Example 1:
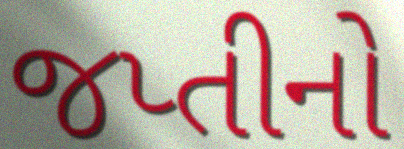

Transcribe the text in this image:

જપ્તીનો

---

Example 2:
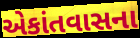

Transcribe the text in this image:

એકાંતવાસના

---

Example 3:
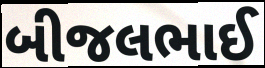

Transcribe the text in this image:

બીજલભાઈ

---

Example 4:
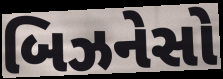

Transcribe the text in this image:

બિઝનેસો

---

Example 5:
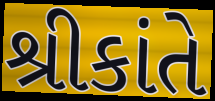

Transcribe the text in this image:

શ્રીકાંતે